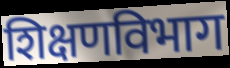
शिक्षणविभाग